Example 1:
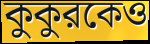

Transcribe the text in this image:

কুকুরকেও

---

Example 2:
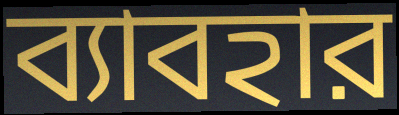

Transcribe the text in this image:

ব্যাবহার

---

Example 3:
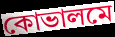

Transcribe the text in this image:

কোভালমে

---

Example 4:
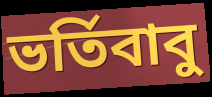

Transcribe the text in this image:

ভর্তিবাবু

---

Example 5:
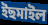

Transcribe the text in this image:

ইছমাইল